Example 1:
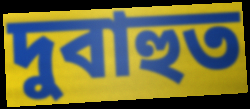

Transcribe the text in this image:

দুবাহুত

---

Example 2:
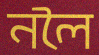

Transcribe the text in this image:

নলৈ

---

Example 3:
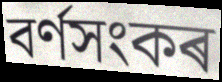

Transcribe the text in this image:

বৰ্ণসংকৰ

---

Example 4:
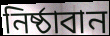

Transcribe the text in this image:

নিষ্ঠাবান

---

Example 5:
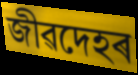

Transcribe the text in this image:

জীৱদেহৰ